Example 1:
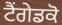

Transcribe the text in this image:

ਟੈਂਗੇਡਕੋ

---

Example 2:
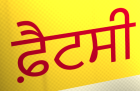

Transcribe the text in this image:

ਫ਼ੈਟਸੀ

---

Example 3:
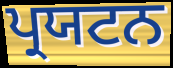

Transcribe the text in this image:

ਪ੍ਰਯਟਨ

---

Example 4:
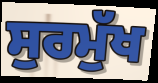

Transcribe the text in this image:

ਸੁਰਮੁੱਖ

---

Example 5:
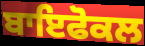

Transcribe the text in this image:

ਬਾਇਫੋਕਲ